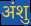
अंशु